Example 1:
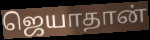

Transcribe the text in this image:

ஜெயாதான்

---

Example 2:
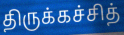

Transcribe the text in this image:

திருக்கச்சித்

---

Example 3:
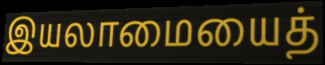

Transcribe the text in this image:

இயலாமையைத்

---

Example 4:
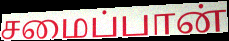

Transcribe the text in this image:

சமைப்பான்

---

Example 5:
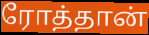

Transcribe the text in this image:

ரோத்தான்